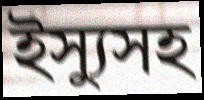
ইস্যুসহ